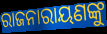
ରାଜନାରାୟଣଙ୍କୁ